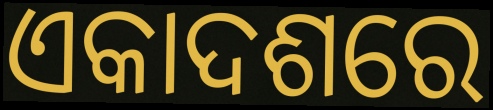
ଏକାଦଶରେ